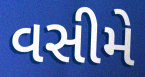
વસીમે